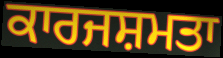
ਕਾਰਜਸ਼ਮਤਾ